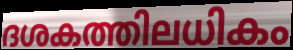
ദശകത്തിലധികം